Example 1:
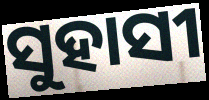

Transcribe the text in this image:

ସୁହାସୀ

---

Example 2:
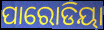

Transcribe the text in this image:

ପାରୋଡିୟା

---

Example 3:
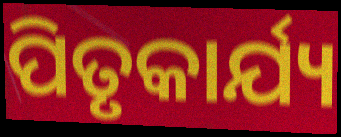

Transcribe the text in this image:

ପିତୃକାର୍ଯ୍ୟ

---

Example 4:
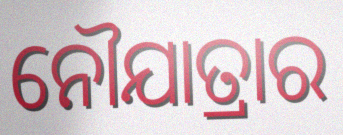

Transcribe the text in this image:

ନୌଯାତ୍ରାର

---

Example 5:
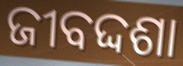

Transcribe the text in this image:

ଜୀବଦ୍ଦଶା